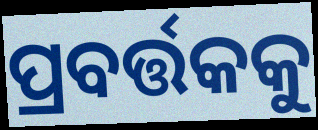
ପ୍ରବର୍ତ୍ତକକୁ